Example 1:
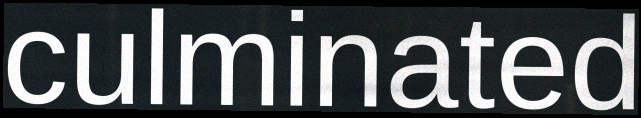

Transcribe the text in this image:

culminated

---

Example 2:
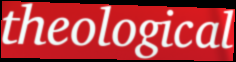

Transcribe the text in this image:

theological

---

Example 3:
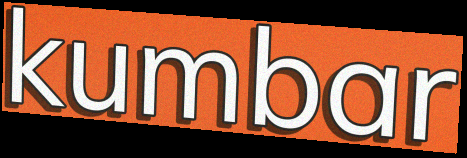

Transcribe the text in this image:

kumbar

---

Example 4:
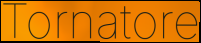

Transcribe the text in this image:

Tornatore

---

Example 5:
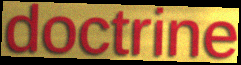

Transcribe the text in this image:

doctrine